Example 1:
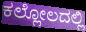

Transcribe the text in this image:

ಕಲ್ಲೋಲದಲ್ಲಿ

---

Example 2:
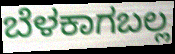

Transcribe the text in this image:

ಬೆಳಕಾಗಬಲ್ಲ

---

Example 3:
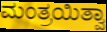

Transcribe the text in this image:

ಮಂತ್ರಯಿತ್ವಾ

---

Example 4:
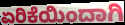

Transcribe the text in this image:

ಏರಿಕೆಯಿಂದಾಗಿ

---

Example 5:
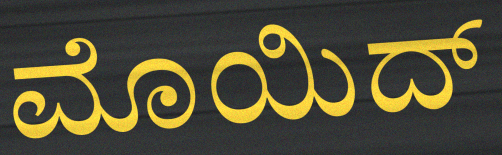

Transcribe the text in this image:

ಮೊಯಿದ್